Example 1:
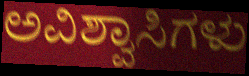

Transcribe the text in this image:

ಅವಿಶ್ವಾಸಿಗಳು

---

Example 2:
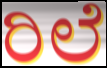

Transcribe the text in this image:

ರಿಲೆ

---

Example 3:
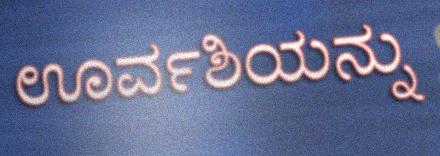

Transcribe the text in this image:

ಊರ್ವಶಿಯನ್ನು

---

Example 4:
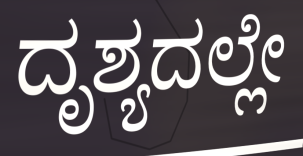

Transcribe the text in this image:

ದೃಶ್ಯದಲ್ಲೇ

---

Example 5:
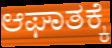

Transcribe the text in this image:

ಆಘಾತಕ್ಕೆ